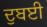
ਦੁਬਈ